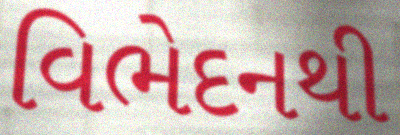
વિભેદનથી